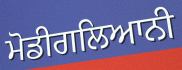
ਮੋਡੀਗਲਿਆਨੀ